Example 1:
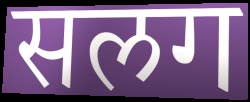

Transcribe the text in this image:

सलग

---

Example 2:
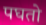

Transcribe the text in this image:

पघतो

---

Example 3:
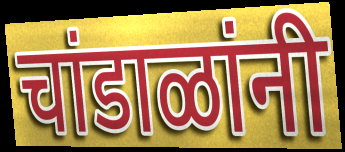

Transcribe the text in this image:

चांडाळांनी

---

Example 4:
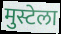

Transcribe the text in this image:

मुस्टेला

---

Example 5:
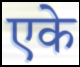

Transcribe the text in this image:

एके